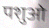
पशुओ